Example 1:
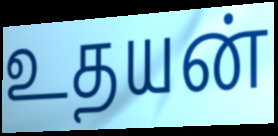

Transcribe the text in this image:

உதயன்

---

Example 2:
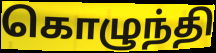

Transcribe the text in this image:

கொழுந்தி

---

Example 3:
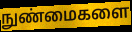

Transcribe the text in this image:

நுண்மைகளை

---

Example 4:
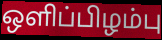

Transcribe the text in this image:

ஒளிப்பிழம்பு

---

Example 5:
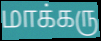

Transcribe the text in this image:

மாக்கரு